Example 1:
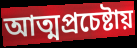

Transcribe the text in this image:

আত্মপ্রচেষ্টায়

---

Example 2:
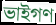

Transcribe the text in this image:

ভাইগণ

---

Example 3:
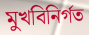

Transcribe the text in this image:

মুখবিনির্গত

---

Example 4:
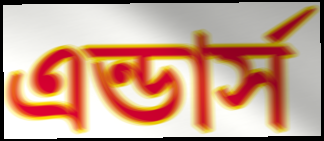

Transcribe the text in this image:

এন্ডার্স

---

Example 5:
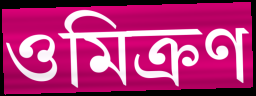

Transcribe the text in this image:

ওমিক্রণ